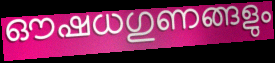
ഔഷധഗുണങ്ങളും